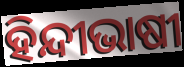
ହିନ୍ଦୀଭାଷୀ